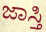
ಜಾಸ್ತಿ